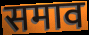
समाव